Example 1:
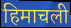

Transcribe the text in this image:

हिमाचली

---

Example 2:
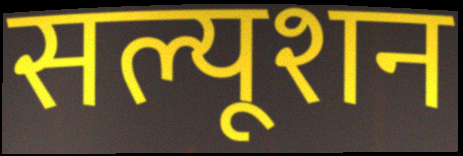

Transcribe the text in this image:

सल्यूशन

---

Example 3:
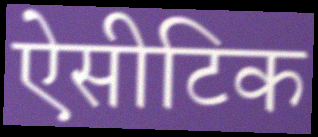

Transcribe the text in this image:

ऐसीटिक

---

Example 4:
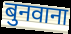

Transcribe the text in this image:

बुनवाना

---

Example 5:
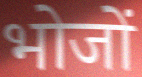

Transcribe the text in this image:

भोजों